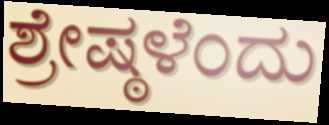
ಶ್ರೇಷ್ಠಳೆಂದು